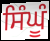
ਸਿੰਘੂੰ